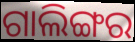
ଗାଲିଙ୍ଗର